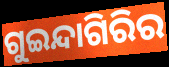
ଗୁଇନ୍ଦାଗିରିର